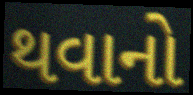
થવાનો